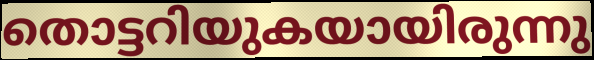
തൊട്ടറിയുകയായിരുന്നു